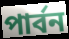
পাৰ্বন